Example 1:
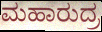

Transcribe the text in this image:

ಮಹಾರುದ್ರ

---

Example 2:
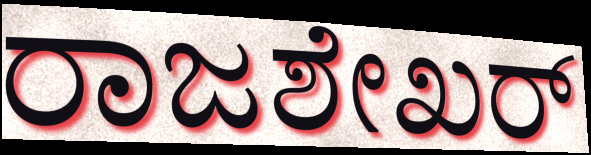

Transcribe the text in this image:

ರಾಜಶೇಖರ್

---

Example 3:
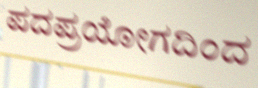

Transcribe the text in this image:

ಪದಪ್ರಯೋಗದಿಂದ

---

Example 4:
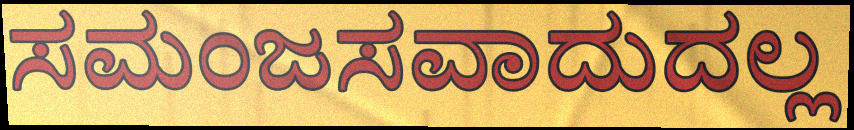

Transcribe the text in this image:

ಸಮಂಜಸವಾದುದಲ್ಲ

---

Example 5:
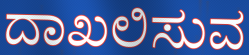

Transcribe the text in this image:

ದಾಖಲಿಸುವ